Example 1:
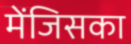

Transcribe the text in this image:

मेंजिसका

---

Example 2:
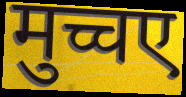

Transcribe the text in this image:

मुच्चए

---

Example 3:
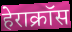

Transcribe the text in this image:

हेराक्रॉस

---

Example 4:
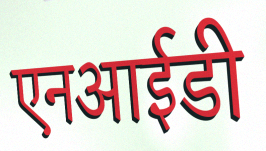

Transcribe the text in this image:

एनआईडी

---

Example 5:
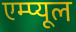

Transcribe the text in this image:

एम्प्यूल